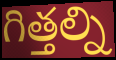
గిత్తల్ని